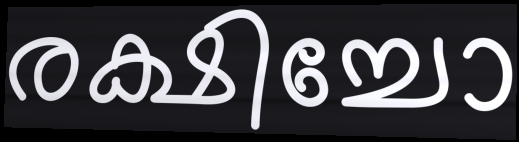
രക്ഷിച്ചോ